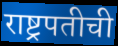
राष्ट्रपतीची